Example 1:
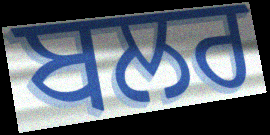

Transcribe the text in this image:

ਬਲਰ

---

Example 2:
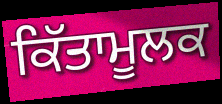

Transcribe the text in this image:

ਕਿੱਤਾਮੂਲਕ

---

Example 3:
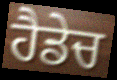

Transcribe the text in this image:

ਹੈਡੇਚ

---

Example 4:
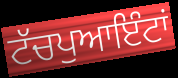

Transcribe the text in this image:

ਟੱਚਪੁਆਇੰਟਾਂ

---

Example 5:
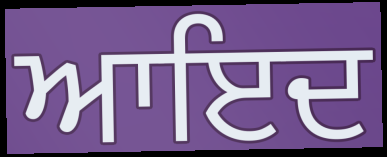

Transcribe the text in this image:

ਆਇਦ